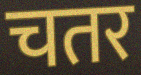
चतर